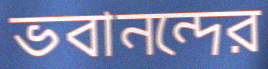
ভবানন্দের